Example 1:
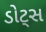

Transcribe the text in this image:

ડોટ્સ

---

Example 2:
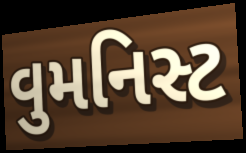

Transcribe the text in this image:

વુમનિસ્ટ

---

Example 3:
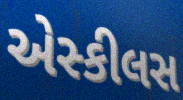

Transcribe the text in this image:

એસ્કીલસ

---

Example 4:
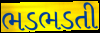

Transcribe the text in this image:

ભડભડતી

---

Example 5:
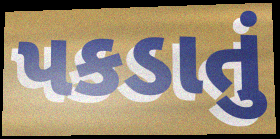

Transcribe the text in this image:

પકડાતું